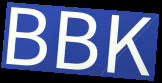
BBK